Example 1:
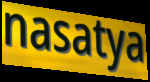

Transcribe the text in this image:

nasatya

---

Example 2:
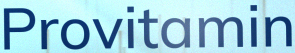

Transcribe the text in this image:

Provitamin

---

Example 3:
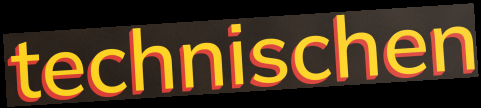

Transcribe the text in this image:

technischen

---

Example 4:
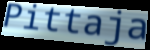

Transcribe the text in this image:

Pittaja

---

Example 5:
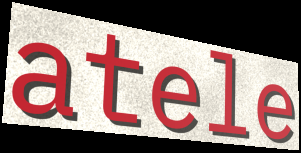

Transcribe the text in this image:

atele